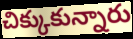
చిక్కుకున్నారు